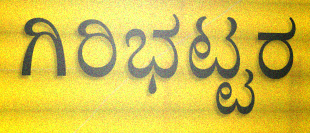
ಗಿರಿಭಟ್ಟರ